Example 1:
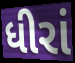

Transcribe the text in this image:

ધીરાં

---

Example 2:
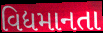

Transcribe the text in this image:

વિદ્યમાનતા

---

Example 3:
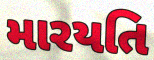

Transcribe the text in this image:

મારયતિ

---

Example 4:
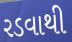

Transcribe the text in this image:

રડવાથી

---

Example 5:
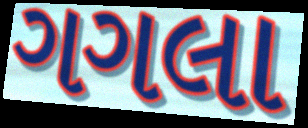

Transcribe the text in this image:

ગગલા